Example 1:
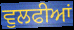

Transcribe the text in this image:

ਵੁਲਫੀਆਂ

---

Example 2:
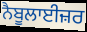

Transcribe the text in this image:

ਨੈਬੂਲਾਈਜ਼ਰ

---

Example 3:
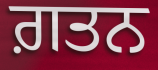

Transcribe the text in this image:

ਗ਼ਤਨ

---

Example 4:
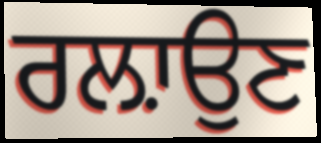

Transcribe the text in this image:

ਰਲ਼ਾਉਣ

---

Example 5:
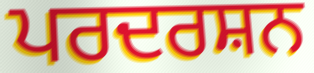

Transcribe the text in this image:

ਪਰਦਰਸ਼ਨ